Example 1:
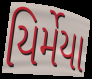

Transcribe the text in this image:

યિર્મેયા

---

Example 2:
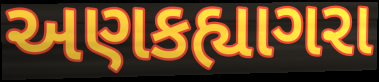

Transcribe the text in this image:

અણકહ્યાગરા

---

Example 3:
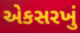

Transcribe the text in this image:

એકસરખું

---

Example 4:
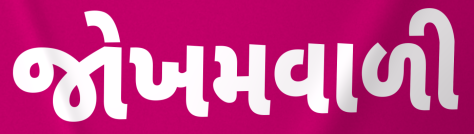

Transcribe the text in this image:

જોખમવાળી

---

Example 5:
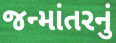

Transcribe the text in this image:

જન્માંતરનું